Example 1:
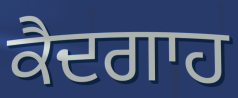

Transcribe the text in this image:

ਕੈਦਗਾਹ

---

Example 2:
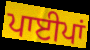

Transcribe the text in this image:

ਪਾਈਪਾਂ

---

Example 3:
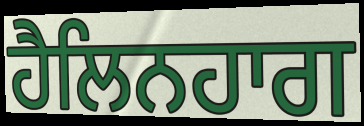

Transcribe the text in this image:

ਹੈਲਿਨਹਾਗ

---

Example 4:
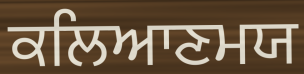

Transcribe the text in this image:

ਕਲਿਆਣਮਯ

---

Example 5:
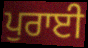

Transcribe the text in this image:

ਪੁਰਾਈ